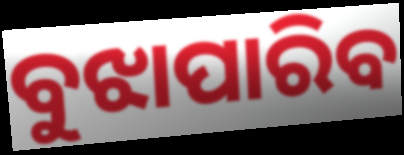
ବୁଝାପାରିବ